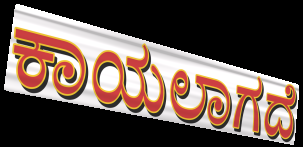
ಕಾಯಲಾಗದೆ